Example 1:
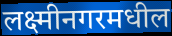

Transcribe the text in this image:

लक्ष्मीनगरमधील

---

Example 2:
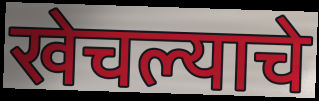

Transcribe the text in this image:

खेचल्याचे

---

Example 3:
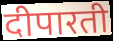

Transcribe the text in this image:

दीपारती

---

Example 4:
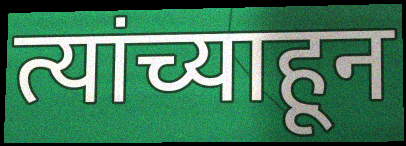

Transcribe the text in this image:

त्यांच्याहून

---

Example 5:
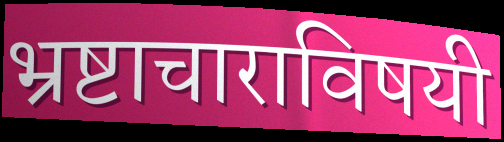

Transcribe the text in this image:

भ्रष्टाचाराविषयी